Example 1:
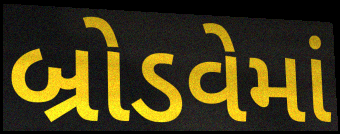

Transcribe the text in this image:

બ્રોડવેમાં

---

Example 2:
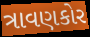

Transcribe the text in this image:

ત્રાવણકોર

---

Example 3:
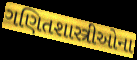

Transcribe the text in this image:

ગણિતશાસ્ત્રીઓના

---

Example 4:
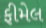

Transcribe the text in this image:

ફીમેલ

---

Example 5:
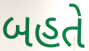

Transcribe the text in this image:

બહતે